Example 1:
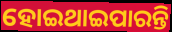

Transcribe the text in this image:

ହୋଇଥାଇପାରନ୍ତି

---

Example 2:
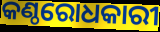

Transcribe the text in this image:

କଣ୍ଠରୋଧକାରୀ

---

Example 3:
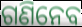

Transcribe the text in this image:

ଗଣିନେବ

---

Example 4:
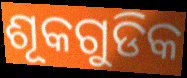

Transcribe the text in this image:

ଶୂକଗୁଡିକ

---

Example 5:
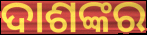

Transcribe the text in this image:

ଦାଶଙ୍କର